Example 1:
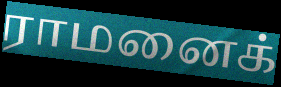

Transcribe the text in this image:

ராமனைக்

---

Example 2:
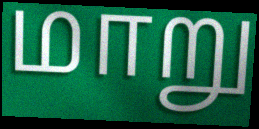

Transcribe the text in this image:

மாறு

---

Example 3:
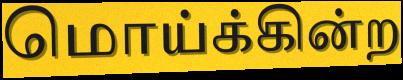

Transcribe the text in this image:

மொய்க்கின்ற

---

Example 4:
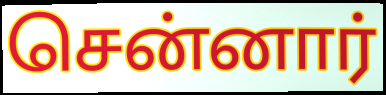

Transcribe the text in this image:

சென்னார்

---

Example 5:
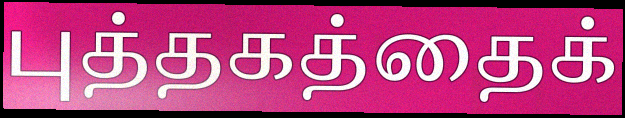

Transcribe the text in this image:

புத்தகத்தைக்